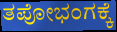
ತಪೋಭಂಗಕ್ಕೆ